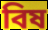
বিষ